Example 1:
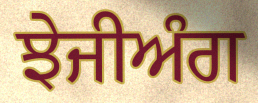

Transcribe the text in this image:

ਝੇਜੀਅੰਗ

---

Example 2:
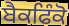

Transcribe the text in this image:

ਬੈਕਫਿੰਕੋ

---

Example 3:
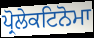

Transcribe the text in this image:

ਪ੍ਰੋਲੇਕਟਿਨੋਮਾ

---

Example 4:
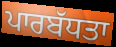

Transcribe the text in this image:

ਪਾਰਬੱਧਤਾ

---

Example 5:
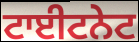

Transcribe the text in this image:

ਟਾਈਟਨੇਟ